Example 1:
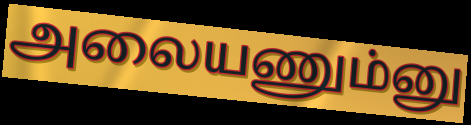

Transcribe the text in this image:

அலையணும்னு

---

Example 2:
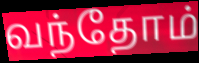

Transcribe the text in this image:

வந்தோம்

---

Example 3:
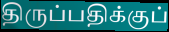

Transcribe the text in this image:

திருப்பதிக்குப்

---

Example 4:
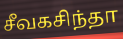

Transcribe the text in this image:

சீவகசிந்தா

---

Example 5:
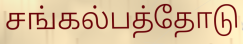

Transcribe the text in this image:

சங்கல்பத்தோடு